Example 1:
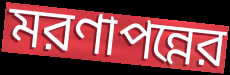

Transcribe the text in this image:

মরণাপন্নের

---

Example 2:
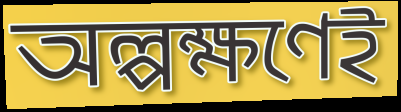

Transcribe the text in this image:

অল্পক্ষণেই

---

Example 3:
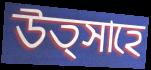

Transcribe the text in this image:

উত্সাহে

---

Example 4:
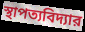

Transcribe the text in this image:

স্থাপত্যবিদ্যার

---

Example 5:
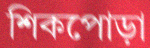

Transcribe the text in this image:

শিকপোড়া